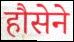
हौसेने